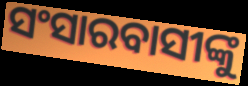
ସଂସାରବାସୀଙ୍କୁ